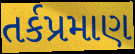
તર્કપ્રમાણ